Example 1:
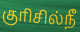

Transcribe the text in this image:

குரிசில்நீ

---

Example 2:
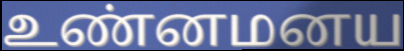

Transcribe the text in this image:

உண்னமனய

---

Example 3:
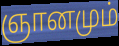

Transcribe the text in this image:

ஞானமும்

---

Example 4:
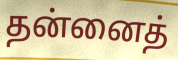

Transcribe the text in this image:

தன்னைத்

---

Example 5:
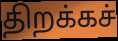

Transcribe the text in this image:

திறக்கச்